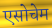
एसोचेम